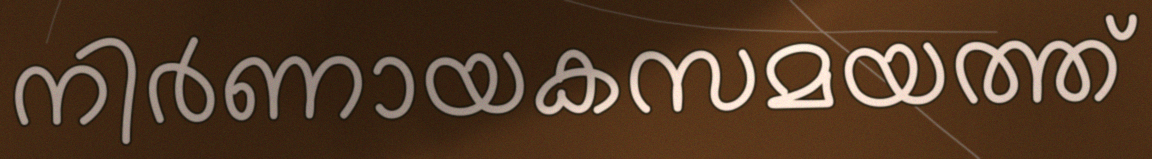
നിർണായകസമയത്ത്